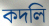
কদলি